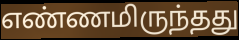
எண்ணமிருந்தது